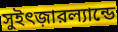
সুইৎজ়ারল্যান্ডে